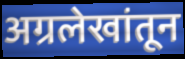
अग्रलेखांतून